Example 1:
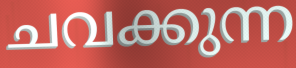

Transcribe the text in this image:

ചവക്കുന്ന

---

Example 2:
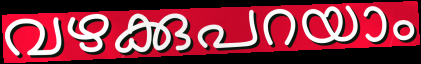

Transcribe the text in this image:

വഴക്കുപറയാം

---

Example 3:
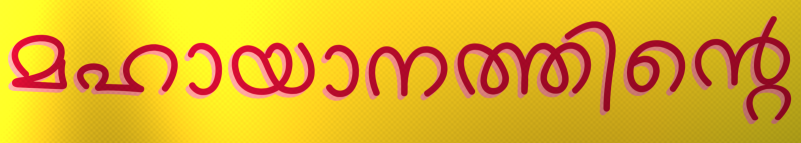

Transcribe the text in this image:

മഹായാനത്തിന്റെ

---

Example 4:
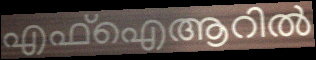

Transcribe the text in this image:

എഫ്ഐആറിൽ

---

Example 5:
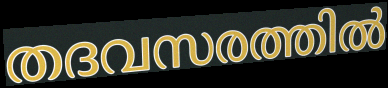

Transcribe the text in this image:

തദവസരത്തിൽ